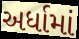
અર્ધામાં